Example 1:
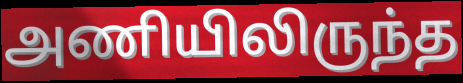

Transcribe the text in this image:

அணியிலிருந்த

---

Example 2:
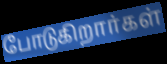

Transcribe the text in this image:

போடுகிறார்கள்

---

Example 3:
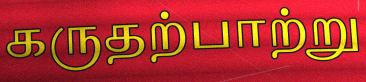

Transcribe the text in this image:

கருதற்பாற்று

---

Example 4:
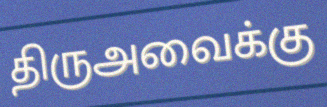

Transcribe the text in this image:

திருஅவைக்கு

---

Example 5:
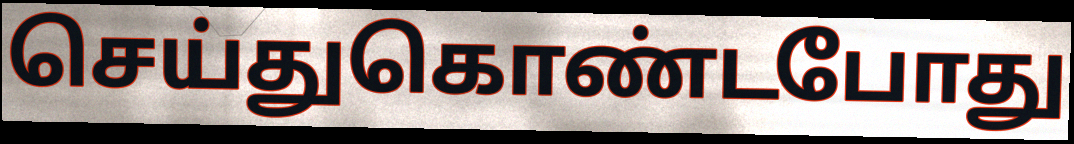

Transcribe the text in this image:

செய்துகொண்டபோது